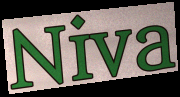
Niva